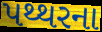
પથ્થરના